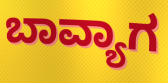
ಬಾವ್ಯಾಗ